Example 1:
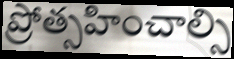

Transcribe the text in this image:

ప్రోత్సహించాల్సి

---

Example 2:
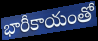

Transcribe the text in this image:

భారీకాయంతో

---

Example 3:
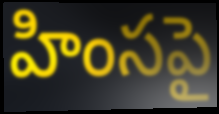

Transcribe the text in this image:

హింసపై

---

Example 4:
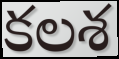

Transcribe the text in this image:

కలశ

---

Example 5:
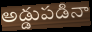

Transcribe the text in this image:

అడ్డుపడినా